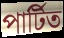
পাৰ্টিত